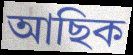
আছিক